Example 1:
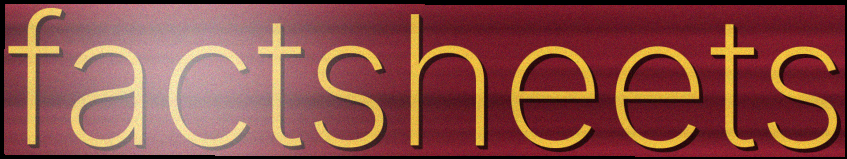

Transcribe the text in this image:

factsheets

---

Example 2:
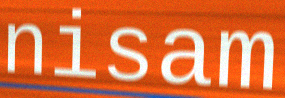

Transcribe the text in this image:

nisam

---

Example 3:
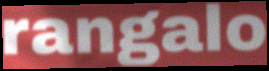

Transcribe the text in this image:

rangalo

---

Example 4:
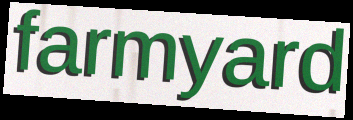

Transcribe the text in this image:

farmyard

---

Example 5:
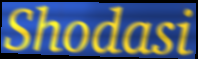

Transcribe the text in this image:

Shodasi